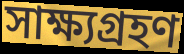
সাক্ষ্যগ্রহণ